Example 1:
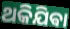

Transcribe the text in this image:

ଥକିଯିଵା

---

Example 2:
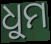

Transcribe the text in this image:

ଧୁମ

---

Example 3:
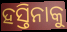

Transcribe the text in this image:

ହସ୍ତିନାକୁ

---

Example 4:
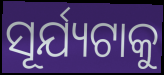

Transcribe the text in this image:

ସୂର୍ଯ୍ୟଟାକୁ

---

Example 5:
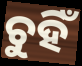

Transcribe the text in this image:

ଚୁହିଁ